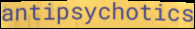
antipsychotics